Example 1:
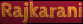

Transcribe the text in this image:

Rajkarani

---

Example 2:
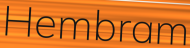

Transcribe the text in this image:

Hembram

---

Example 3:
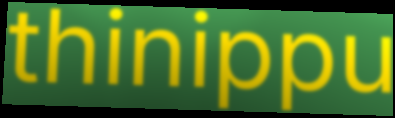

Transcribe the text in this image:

thinippu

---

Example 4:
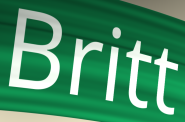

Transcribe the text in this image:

Britt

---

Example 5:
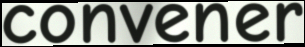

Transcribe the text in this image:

convener